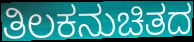
ತಿಲಕನುಚಿತದ